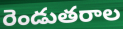
రెండుతరాల